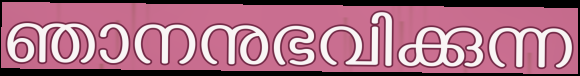
ഞാനനുഭവിക്കുന്ന